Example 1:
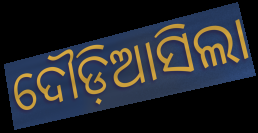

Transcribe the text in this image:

ଦୌଡ଼ିଆସିଲା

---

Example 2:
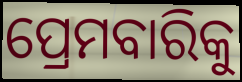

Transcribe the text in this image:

ପ୍ରେମବାରିକୁ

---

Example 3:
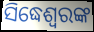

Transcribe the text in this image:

ସିଦ୍ଧେଶ୍ୱରଙ୍କ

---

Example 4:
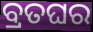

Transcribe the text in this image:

ବ୍ରତଘର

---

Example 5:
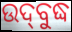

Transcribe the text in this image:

ଉଦ୍‍ବୁଦ୍ଧ